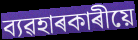
ব্যৱহাৰকাৰীয়ে